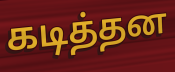
கடித்தன